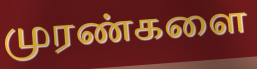
முரண்களை